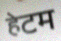
हेटम